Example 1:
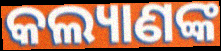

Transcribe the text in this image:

କଲ୍ୟାଣଙ୍କ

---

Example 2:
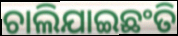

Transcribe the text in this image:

ଚାଲିଯାଇଛଂତି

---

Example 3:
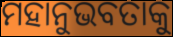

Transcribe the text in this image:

ମହାନୁଭବତାକୁ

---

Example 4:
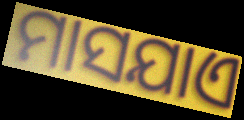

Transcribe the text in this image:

ମାସଯାଏ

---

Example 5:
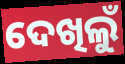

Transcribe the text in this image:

ଦେଖିଲୁଁ